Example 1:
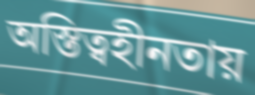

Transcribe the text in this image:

অস্তিত্বহীনতায়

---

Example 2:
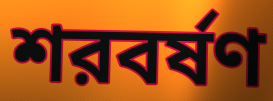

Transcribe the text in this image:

শরবর্ষণ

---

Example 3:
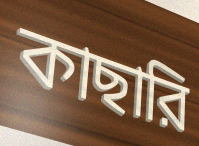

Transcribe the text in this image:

কাছারি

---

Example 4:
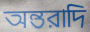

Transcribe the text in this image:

অন্তরাদি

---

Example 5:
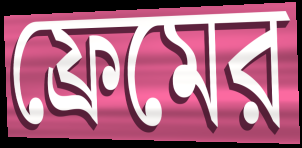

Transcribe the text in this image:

ফ্রেমের